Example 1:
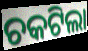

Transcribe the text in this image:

ଚକଟିଲା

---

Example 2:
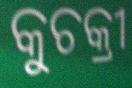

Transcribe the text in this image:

କୁଚକ୍ରୀ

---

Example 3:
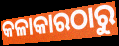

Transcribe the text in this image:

କଳାକାରଠାରୁ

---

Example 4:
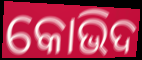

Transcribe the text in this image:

କୋଭିଦ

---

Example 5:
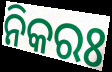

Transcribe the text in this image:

ନିକରଃ